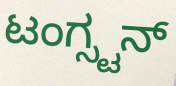
ಟಂಗ್ಸ್ಟನ್